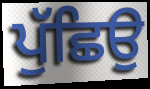
ਪੁੱਛਿਉ